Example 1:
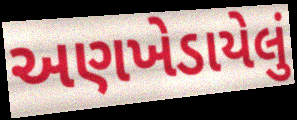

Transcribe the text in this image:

અણખેડાયેલું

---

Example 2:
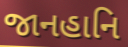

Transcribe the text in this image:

જાનહાનિ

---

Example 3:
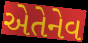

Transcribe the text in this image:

એતેનેવ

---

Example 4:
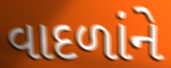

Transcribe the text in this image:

વાદળાંને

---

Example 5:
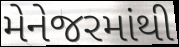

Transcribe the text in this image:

મેનેજરમાંથી